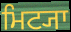
ਮਿਟ੍ਯਾ